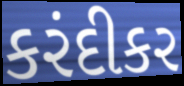
કરંદીકર